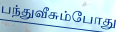
பந்துவீசும்போது